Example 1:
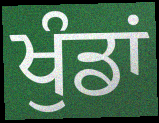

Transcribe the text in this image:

ਖੁੰਡਾਂ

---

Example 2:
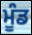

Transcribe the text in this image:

ਮੂੰਡ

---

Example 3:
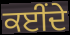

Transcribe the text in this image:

ਕਈਂਦੇ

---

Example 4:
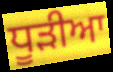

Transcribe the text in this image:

ਧੂੜੀਆ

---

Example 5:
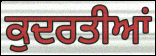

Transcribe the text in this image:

ਕੁਦਰਤੀਆਂ